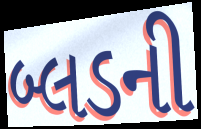
બ્લડની